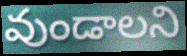
వుండాలని